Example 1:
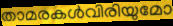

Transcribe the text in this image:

താമരകൾവിരിയുമോ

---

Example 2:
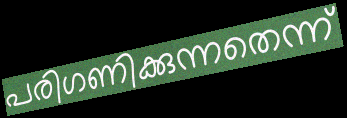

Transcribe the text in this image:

പരിഗണിക്കുന്നതെന്ന്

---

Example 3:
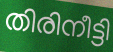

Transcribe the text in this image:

തിരിനീട്ടി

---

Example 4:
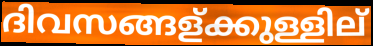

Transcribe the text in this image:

ദിവസങ്ങള്ക്കുള്ളില്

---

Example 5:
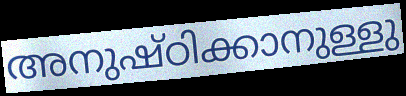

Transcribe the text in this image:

അനുഷ്ഠിക്കാനുള്ളു